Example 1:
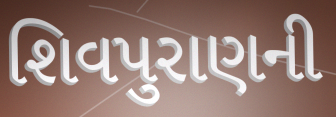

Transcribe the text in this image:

શિવપુરાણની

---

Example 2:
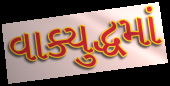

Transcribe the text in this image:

વાક્યુદ્ધમાં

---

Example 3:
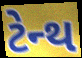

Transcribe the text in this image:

ટેન્થ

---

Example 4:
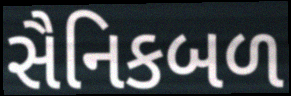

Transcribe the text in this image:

સૈનિકબળ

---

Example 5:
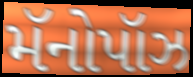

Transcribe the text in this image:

મૅનોપૉઝ